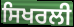
ਸਿਖਰਲੀ